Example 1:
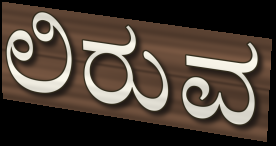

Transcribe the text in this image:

ಲಿರುವ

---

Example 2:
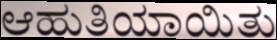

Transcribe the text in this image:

ಆಹುತಿಯಾಯಿತು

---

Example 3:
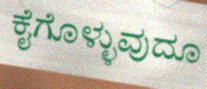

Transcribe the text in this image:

ಕೈಗೊಳ್ಳುವುದೂ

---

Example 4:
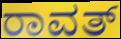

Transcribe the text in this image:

ರಾವತ್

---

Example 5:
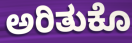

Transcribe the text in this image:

ಅರಿತುಕೊ